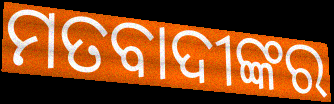
ମତବାଦୀଙ୍କର